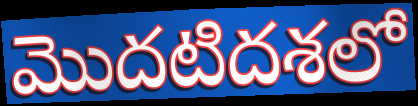
మొదటిదశలో